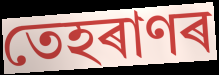
তেহৰাণৰ